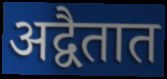
अद्वैतात